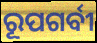
ରୂପଗର୍ବୀ